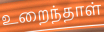
உறைந்தாள்